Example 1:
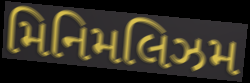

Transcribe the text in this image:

મિનિમલિઝમ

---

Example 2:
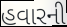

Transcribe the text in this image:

હવારની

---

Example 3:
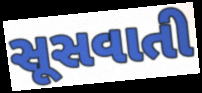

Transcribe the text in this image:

સૂસવાતી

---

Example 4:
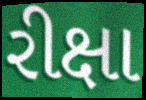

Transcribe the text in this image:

રીક્ષા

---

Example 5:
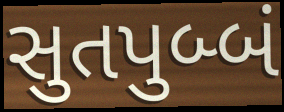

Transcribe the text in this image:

સુતપુબ્બં